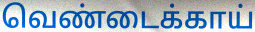
வெண்டைக்காய்